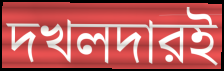
দখলদারই